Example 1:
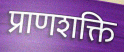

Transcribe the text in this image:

प्राणशक्ति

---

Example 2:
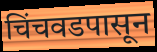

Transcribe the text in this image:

चिंचवडपासून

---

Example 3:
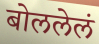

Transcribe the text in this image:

बोललेलं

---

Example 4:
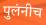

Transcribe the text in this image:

पुलंनीच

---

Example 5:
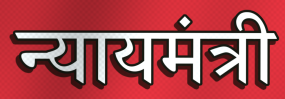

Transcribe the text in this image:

न्यायमंत्री